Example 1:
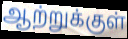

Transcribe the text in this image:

ஆற்றுக்குள்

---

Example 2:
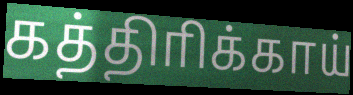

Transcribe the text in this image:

கத்திரிக்காய்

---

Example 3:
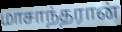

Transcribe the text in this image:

மாசாந்தரான்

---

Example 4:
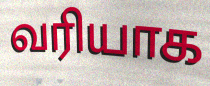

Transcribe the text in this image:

வரியாக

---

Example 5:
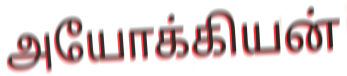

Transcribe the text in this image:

அயோக்கியன்